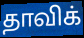
தாவிக்